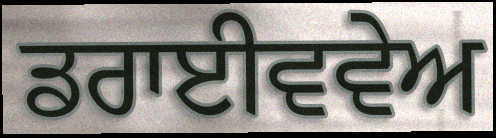
ਡਰਾਈਵਵੇਅ